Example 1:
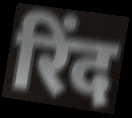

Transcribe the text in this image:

रिंद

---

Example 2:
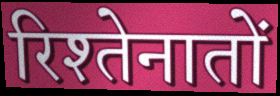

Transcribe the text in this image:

रिश्तेनातों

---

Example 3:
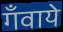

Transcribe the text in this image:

गँवाये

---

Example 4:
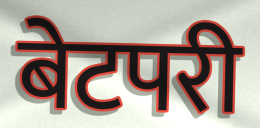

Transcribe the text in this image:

बेटपरी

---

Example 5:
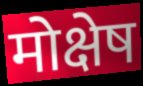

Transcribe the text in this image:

मोक्षेष